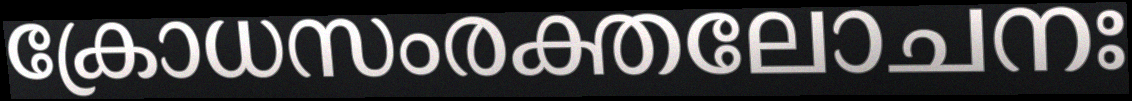
ക്രോധസംരക്തലോചനഃ